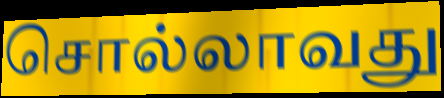
சொல்லாவது